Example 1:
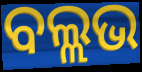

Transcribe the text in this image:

ବଲ୍ଲଭ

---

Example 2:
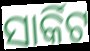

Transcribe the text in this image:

ସାର୍କିଟ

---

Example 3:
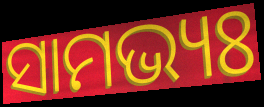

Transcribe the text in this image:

ସାମଭ୍ୟଃ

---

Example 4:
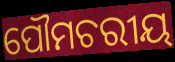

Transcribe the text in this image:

ପୌମଚରୀୟ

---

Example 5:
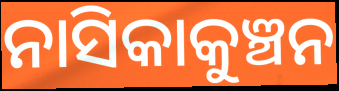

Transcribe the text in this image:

ନାସିକାକୁଞ୍ଚନ